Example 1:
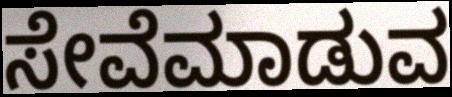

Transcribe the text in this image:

ಸೇವೆಮಾಡುವ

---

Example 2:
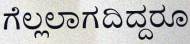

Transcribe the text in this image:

ಗೆಲ್ಲಲಾಗದಿದ್ದರೂ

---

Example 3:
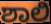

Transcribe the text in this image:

ಶಾಲಿ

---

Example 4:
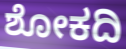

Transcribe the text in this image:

ಶೋಕದಿ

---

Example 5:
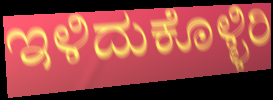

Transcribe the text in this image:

ಇಳಿದುಕೊಳ್ಳಿರಿ